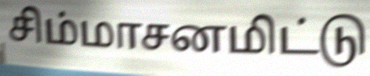
சிம்மாசனமிட்டு